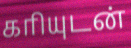
கரியுடன்